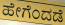
ಹೇಗೆಂದಡೆ